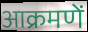
आक्रमणें